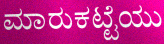
ಮಾರುಕಟ್ಟೆಯು